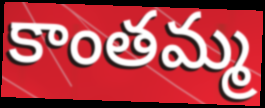
కాంతమ్మ